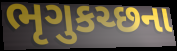
ભૃગુકચ્છના